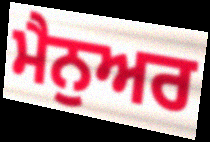
ਮੈਨੁਅਰ